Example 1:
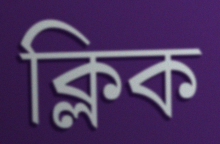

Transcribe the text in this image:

ক্লিক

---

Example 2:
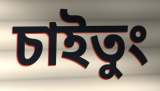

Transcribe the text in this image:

চাইতুং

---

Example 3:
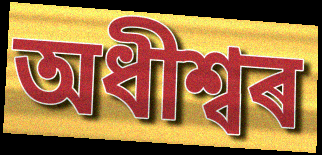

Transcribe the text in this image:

অধীশ্বৰ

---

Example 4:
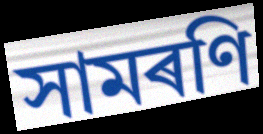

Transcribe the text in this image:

সামৰণি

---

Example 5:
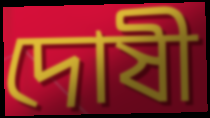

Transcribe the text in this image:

দোষী